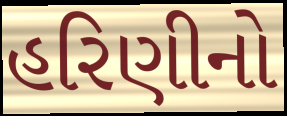
હરિણીનો